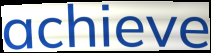
achieve